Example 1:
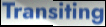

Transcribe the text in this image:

Transiting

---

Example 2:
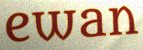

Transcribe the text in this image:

ewan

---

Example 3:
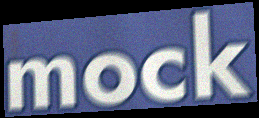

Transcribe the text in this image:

mock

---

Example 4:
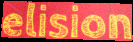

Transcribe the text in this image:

elision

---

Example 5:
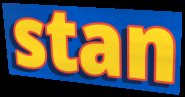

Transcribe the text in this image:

stan